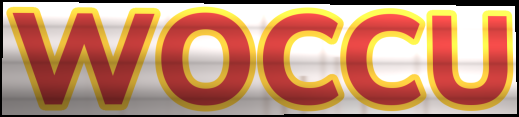
WOCCU